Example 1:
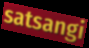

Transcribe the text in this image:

satsangi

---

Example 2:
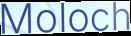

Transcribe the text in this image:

Moloch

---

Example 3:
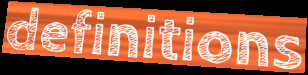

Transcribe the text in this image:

definitions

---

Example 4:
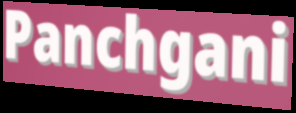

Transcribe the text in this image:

Panchgani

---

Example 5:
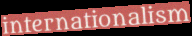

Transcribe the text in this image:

internationalism